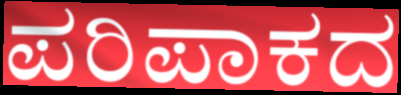
ಪರಿಪಾಕದ